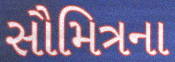
સૌમિત્રના